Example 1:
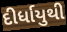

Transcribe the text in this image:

દીર્ધાયુથી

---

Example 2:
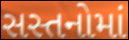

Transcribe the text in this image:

સસ્તનોમાં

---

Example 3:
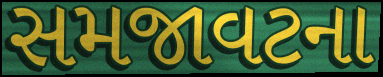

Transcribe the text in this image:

સમજાવટના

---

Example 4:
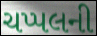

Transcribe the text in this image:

ચપ્પલની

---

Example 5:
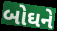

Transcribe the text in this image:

બોઘને